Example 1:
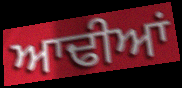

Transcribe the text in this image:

ਆਢੀਆਂ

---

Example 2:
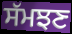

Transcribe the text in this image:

ਸੱਮਝਣ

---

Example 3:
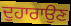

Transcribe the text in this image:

ਦੁਹਾਰਾਉਣ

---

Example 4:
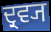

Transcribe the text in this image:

ਦ੍ਰਵ੍ਯ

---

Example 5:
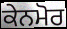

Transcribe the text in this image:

ਕੇਨਮੋਰ